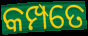
କମ୍ପତେ